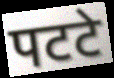
पटटे